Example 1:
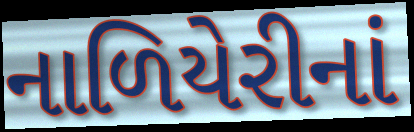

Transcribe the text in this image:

નાળિયેરીનાં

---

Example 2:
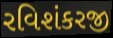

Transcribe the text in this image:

રવિશંકરજી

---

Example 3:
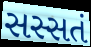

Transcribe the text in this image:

સસ્સતં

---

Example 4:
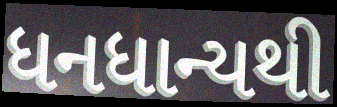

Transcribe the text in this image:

ધનધાન્યથી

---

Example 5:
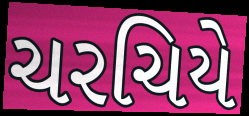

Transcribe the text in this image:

ચરચિયે